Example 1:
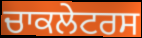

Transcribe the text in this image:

ਚਾਕਲੇਟਰਸ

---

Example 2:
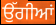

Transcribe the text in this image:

ਉੱਗੀਆਂ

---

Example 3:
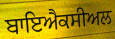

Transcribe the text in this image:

ਬਾਇਐਕਸੀਅਲ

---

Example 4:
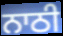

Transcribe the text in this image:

ਨਾਠੀ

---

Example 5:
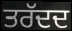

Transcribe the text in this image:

ਤਰੱਦਦ